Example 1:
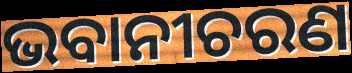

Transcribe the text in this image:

ଭବାନୀଚରଣ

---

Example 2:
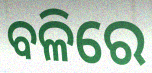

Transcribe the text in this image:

ବଳିରେ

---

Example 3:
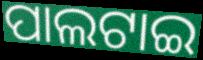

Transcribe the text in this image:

ପାଲଟାଇ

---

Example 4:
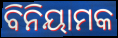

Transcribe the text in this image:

ବିନିୟାମକ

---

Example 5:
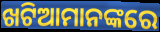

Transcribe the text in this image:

ଖଟିଆମାନଙ୍କରେ